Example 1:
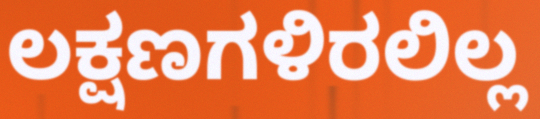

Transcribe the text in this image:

ಲಕ್ಷಣಗಳಿರಲಿಲ್ಲ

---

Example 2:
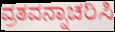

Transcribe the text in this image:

ವ್ರತವನ್ನಾಚರಿಸಿ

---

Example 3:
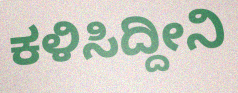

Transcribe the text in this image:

ಕಳಿಸಿದ್ದೀನಿ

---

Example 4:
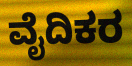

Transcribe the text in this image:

ವೈದಿಕರ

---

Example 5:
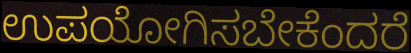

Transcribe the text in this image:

ಉಪಯೋಗಿಸಬೇಕೆಂದರೆ